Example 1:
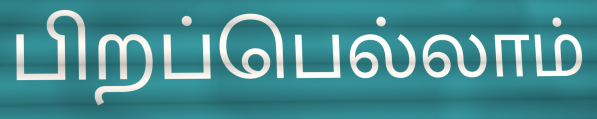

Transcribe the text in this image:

பிறப்பெல்லாம்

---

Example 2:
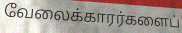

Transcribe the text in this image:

வேலைக்காரர்களைப்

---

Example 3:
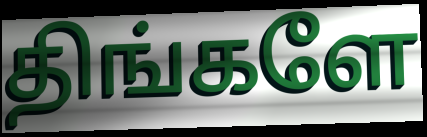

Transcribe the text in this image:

திங்களே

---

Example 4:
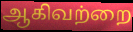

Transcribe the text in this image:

ஆகிவற்றை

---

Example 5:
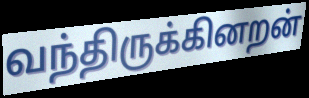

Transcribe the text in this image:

வந்திருக்கினறன்